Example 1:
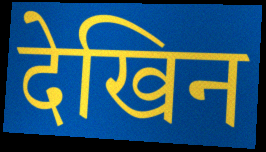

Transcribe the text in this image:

देखिन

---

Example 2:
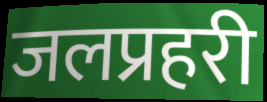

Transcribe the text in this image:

जलप्रहरी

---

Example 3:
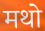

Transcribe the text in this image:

मथो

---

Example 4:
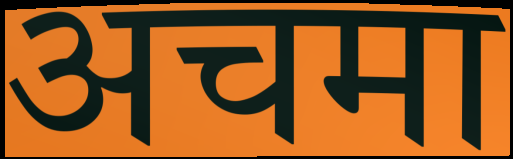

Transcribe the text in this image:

अचमा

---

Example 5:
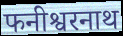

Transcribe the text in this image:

फनीश्वरनाथ